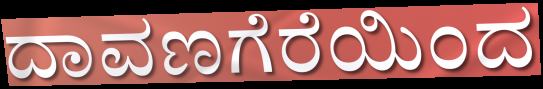
ದಾವಣಗೆರೆಯಿಂದ